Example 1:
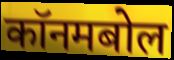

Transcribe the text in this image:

कॉनमबोल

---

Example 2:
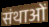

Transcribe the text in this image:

संथाओं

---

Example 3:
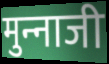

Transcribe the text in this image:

मुन्नाजी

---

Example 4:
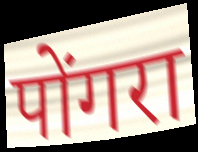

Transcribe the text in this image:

पोंगरा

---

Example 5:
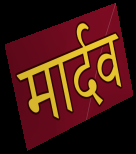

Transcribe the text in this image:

मार्दव